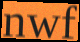
nwf